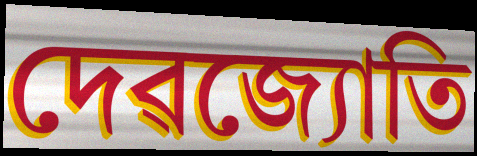
দেৱজ্যোতি